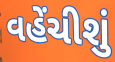
વહેંચીશું